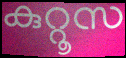
കുറ്റൂസ